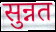
सुन्नत